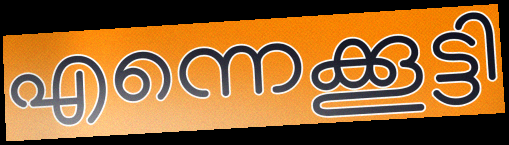
എന്നെക്കൂട്ടി